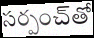
సర్పంచ్‌తో